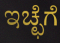
ಇಚ್ಛೆಗೆ